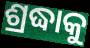
ଶ୍ରଦ୍ଧାକୁ